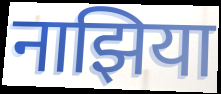
नाझिया